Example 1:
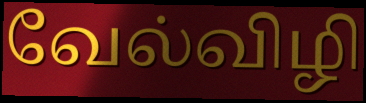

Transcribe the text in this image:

வேல்விழி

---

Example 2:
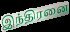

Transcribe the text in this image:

இந்திரனை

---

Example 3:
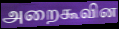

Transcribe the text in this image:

அறைகூவின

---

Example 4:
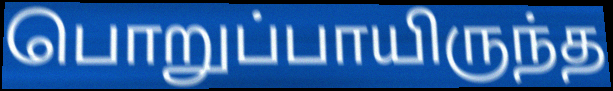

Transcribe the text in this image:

பொறுப்பாயிருந்த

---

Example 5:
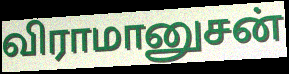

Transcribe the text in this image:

விராமானுசன்